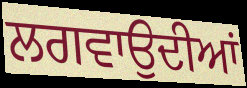
ਲਗਵਾਉਦੀਆਂ